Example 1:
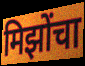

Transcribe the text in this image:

मिझोंचा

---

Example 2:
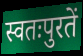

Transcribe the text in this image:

स्वतःपुरतें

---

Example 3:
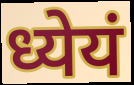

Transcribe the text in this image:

ध्येयं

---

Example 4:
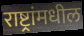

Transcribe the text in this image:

राष्ट्रांमधील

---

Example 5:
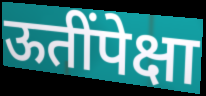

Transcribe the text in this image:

ऊतींपेक्षा